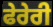
ਫੇਰੇਰੀ